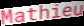
Mathieu